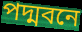
পদ্মবনে